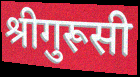
श्रीगुरूसी